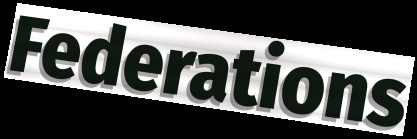
Federations